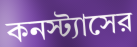
কনস্ট্যাসের